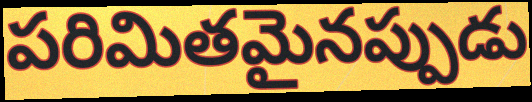
పరిమితమైనప్పుడు